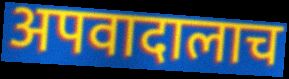
अपवादालाच